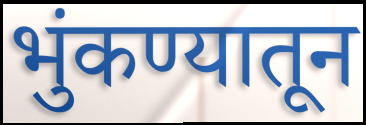
भुंकण्यातून